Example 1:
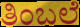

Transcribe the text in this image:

ತಿಂಬಲೆ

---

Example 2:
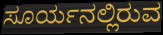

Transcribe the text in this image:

ಸೂರ್ಯನಲ್ಲಿರುವ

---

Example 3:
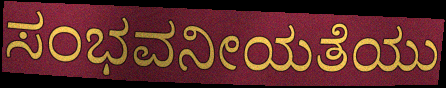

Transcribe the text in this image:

ಸಂಭವನೀಯತೆಯು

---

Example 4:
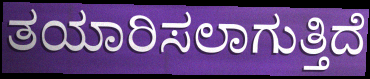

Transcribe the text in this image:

ತಯಾರಿಸಲಾಗುತ್ತಿದೆ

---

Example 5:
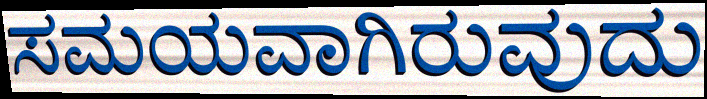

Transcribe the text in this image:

ಸಮಯವಾಗಿರುವುದು